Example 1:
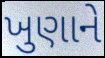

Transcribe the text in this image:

ખુણાને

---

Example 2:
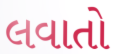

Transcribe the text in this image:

લવાતો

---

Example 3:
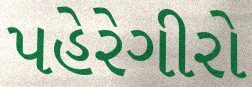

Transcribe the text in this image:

પહેરેગીરો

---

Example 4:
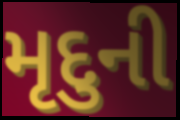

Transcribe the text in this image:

મૃદુની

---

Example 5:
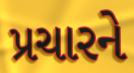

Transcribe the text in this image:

પ્રચારને